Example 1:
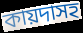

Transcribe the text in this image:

কায়দাসহ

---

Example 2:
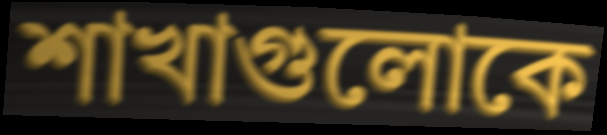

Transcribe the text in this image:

শাখাগুলোকে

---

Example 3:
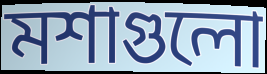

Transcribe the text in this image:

মশাগুলো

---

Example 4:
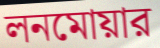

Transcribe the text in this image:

লনমোয়ার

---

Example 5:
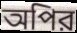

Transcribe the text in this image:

অপির